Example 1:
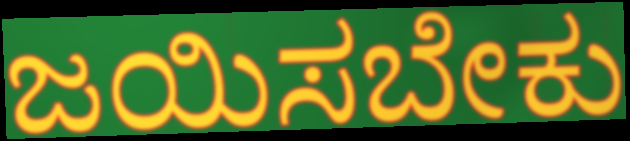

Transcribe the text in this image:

ಜಯಿಸಬೇಕು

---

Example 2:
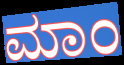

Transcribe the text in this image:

ಮಾಂ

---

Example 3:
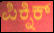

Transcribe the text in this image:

ಪಿಕ್ನಿಕ್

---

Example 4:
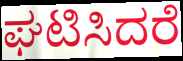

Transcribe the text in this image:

ಘಟಿಸಿದರೆ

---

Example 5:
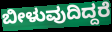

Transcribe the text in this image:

ಬೀಳುವುದಿದ್ದರೆ